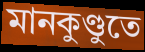
মানকুণ্ডুতে